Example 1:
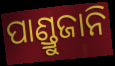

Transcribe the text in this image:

ପାଣ୍ଡ୍ରୁଜାନି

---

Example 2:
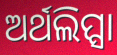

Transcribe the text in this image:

ଅର୍ଥଲିପ୍ସା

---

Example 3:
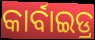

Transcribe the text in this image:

କାର୍ବାଇଡ୍ର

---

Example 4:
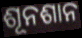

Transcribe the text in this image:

ଶୂନଶାନ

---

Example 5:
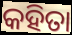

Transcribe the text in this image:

କହିତା